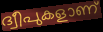
ദ്വീപുകളാണ്